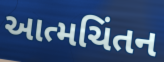
આત્મચિંતન